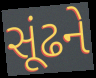
સૂંઢને